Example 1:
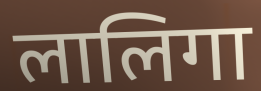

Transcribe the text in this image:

लालिगा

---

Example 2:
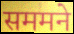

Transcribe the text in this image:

सममने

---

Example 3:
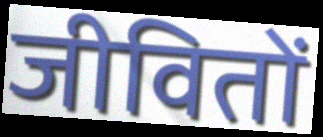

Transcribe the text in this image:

जीवितों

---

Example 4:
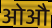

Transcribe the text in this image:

ओऔ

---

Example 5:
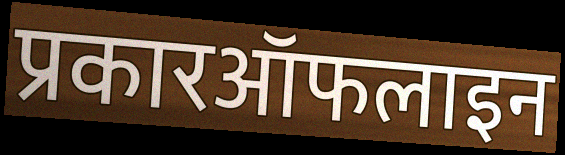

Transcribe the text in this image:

प्रकारऑफलाइन